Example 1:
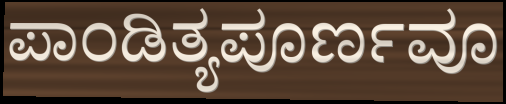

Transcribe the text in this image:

ಪಾಂಡಿತ್ಯಪೂರ್ಣವೂ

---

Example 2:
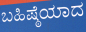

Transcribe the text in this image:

ಬಹಿಷ್ಠೆಯಾದ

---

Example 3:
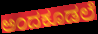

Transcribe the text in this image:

ಅಂದಕೂಡಲೆ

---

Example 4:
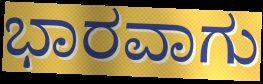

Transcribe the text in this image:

ಭಾರವಾಗು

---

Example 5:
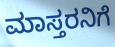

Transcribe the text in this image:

ಮಾಸ್ತರನಿಗೆ